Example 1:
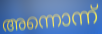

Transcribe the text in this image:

അന്നൊന്ന്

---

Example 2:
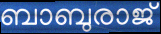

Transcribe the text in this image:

ബാബുരാജ്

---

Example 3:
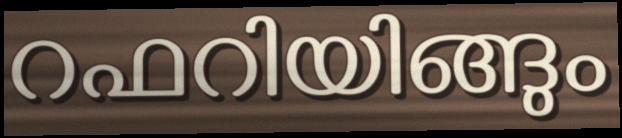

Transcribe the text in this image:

റഫറിയിങ്ങും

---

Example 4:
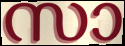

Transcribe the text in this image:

സാ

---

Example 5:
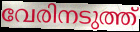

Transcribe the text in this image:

വേരിനടുത്ത്